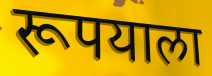
रूपयाला